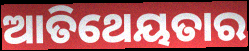
ଆତିଥେୟତାର